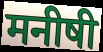
मनीषी